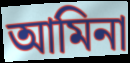
আমিনা